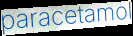
paracetamol